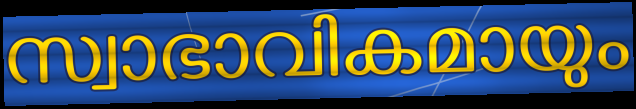
സ്വാഭാവികമായും